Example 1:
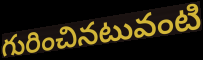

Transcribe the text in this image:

గురించినటువంటి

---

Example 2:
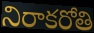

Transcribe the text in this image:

నిరాకరోతి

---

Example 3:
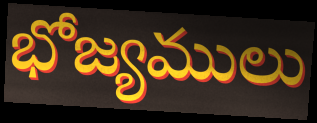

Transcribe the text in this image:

భోజ్యములు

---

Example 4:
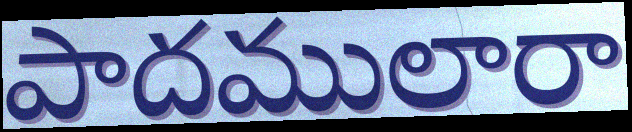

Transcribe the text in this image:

పాదములారా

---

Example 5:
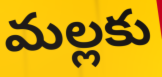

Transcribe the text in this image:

మల్లకు